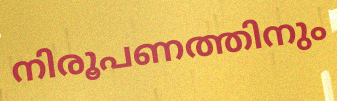
നിരൂപണത്തിനും